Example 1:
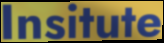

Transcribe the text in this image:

Insitute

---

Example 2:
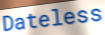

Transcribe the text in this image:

Dateless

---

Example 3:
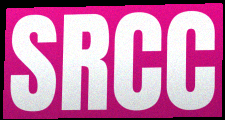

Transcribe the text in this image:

SRCC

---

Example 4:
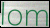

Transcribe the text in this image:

lom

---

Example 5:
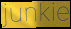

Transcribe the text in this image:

junkie